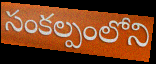
సంకల్పంలోని